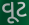
વૂટ